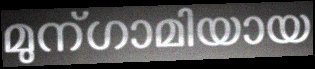
മുന്ഗാമിയായ